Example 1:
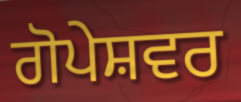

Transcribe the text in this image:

ਗੋਪੇਸ਼ਵਰ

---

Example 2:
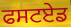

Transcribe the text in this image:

ਫਸਟਏਡ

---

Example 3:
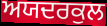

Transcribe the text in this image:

ਅਯਦਰਕੁਲ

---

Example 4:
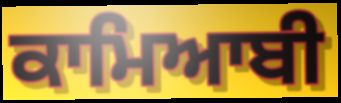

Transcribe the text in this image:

ਕਾਮਿਆਬੀ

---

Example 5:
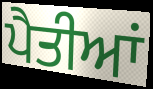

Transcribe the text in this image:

ਪੈਤੀਆਂ